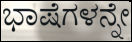
ಭಾಷೆಗಳನ್ನೇ